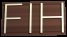
FIH